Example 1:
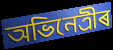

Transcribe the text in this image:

অভিনেত্ৰীৰ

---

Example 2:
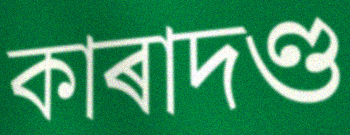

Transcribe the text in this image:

কাৰাদণ্ড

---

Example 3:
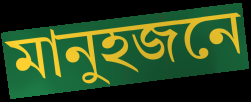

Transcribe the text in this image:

মানুহজনে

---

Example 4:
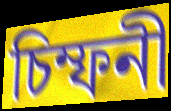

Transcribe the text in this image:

চিম্ফনী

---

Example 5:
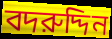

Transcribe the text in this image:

বদৰুদ্দিন